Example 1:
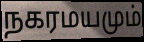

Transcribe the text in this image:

நகரமயமும்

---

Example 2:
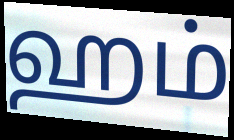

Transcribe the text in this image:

ஹம்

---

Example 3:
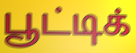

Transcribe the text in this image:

பூட்டிக்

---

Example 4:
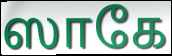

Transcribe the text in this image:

ஸாகே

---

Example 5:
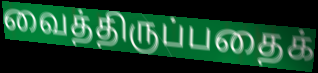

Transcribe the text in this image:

வைத்திருப்பதைக்